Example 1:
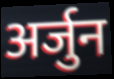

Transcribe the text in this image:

अर्जुन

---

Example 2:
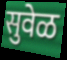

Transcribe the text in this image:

सुवेळ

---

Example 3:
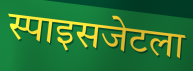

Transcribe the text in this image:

स्पाइसजेटला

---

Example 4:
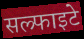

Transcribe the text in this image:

सल्फाइटे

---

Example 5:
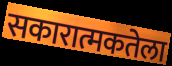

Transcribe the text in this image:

सकारात्मकतेला